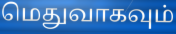
மெதுவாகவும்